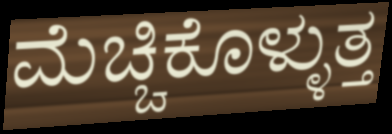
ಮೆಚ್ಚಿಕೊಳ್ಳುತ್ತ